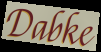
Dabke